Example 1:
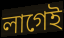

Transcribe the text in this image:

লাগেই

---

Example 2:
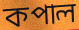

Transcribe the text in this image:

কপাল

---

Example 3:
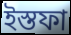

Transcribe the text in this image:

ইস্তফা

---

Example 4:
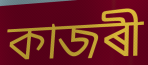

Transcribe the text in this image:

কাজৰী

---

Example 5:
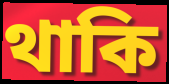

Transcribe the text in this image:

থাকি